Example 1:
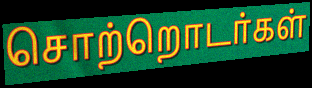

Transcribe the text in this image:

சொற்றொடர்கள்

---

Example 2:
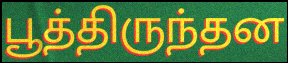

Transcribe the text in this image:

பூத்திருந்தன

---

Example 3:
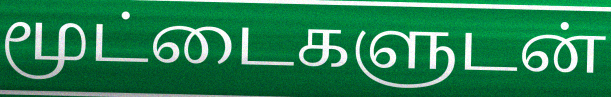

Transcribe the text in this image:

மூட்டைகளுடன்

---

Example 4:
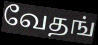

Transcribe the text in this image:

வேதங்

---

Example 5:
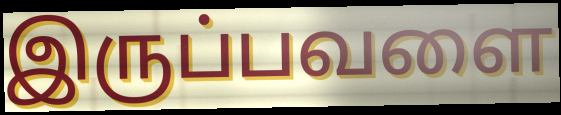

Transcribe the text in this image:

இருப்பவளை